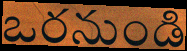
ఒరనుండి